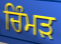
ਚਿੰਮੜ